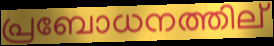
പ്രബോധനത്തില്